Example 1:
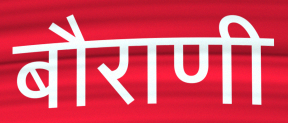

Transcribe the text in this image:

बौराणी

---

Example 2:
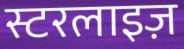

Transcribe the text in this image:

स्टरलाइज़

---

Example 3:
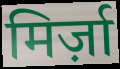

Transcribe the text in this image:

मिर्ज़ा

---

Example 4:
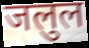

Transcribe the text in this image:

जलुल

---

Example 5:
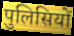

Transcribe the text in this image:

पुलिसियों